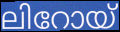
ലിറോയ്